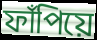
ফাঁপিয়ে